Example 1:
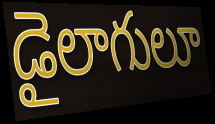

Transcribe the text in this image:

డైలాగులూ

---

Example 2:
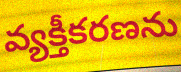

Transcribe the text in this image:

వ్యక్తీకరణను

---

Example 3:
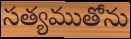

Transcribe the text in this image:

సత్యముతోను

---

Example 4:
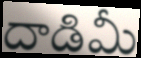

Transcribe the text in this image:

దాడిమీ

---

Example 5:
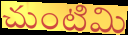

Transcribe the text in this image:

చుంటిమి